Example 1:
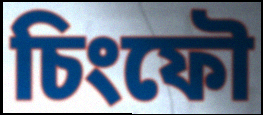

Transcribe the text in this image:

চিংফৌ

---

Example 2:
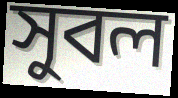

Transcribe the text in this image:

সুবল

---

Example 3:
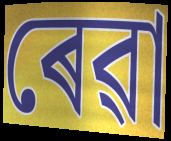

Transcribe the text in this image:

ৰেৱা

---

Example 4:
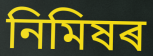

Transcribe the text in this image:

নিমিষৰ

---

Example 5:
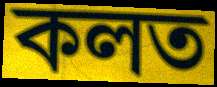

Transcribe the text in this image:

কলত